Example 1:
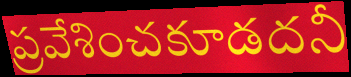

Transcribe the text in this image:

ప్రవేశించకూడదనీ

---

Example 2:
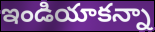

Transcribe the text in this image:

ఇండియాకన్నా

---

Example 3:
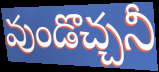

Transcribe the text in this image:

వుండొచ్చనీ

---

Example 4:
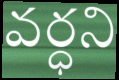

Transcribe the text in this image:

వర్ధని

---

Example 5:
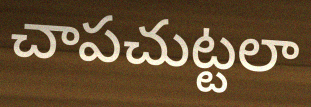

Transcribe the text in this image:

చాపచుట్టలా